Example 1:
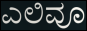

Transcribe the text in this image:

ಎಲಿವೂ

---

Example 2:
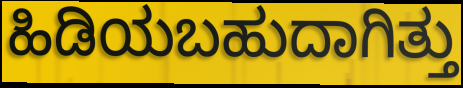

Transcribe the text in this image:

ಹಿಡಿಯಬಹುದಾಗಿತ್ತು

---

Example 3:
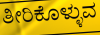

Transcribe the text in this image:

ತೀರಿಕೊಳ್ಳುವ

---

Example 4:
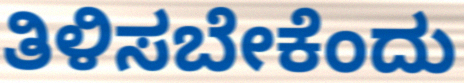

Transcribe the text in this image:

ತಿಳಿಸಬೇಕೆಂದು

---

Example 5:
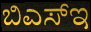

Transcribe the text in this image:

ಬಿಎಸ್ಇ